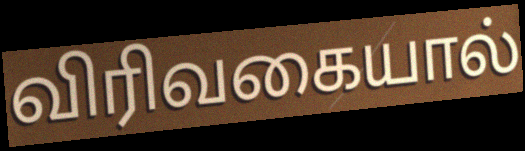
விரிவகையால்